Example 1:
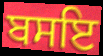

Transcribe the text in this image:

ਬਸਇ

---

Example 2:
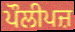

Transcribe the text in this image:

ਪੌਲੀਪਜ਼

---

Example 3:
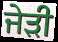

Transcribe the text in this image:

ਜੇੜੀ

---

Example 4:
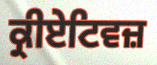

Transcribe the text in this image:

ਕ੍ਰੀਏਟਿਵਜ਼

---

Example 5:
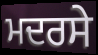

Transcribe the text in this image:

ਮਦਰਸੇ